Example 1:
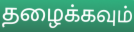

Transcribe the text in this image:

தழைக்கவும்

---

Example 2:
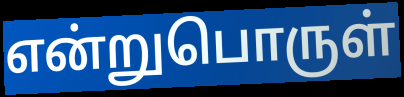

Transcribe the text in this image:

என்றுபொருள்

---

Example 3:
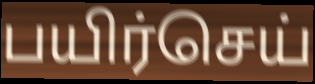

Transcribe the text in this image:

பயிர்செய்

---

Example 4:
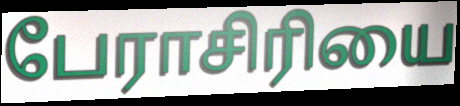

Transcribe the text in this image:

பேராசிரியை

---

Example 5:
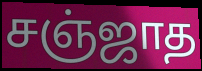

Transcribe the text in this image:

சஞ்ஜாத